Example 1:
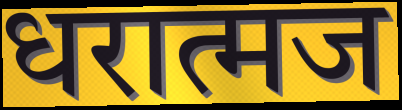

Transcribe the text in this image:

धरात्मज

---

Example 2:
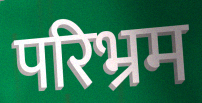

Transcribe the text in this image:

परिभ्रम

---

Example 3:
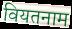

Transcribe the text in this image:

वियतनाम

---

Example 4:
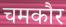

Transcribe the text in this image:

चमकौर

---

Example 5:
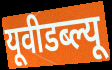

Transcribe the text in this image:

यूवीडब्ल्यू